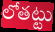
లోతట్టు